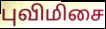
புவிமிசை